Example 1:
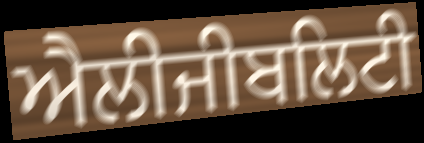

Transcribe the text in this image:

ਐਲੀਜੀਬਲਿਟੀ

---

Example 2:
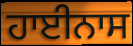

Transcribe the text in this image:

ਹਾਈਨਾਸ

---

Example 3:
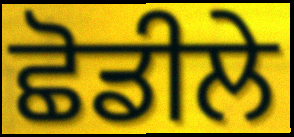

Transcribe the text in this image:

ਛੋਡੀਲੇ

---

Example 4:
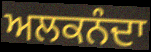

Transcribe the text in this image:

ਅਲਕਨੰਦਾ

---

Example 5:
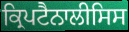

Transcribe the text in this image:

ਕ੍ਰਿਪਟੈਨਾਲੀਸਿਸ